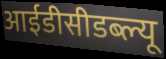
आईडीसीडब्ल्यू